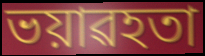
ভয়াৱহতা